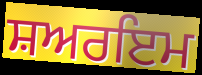
ਸ਼ਅਰਇਮ